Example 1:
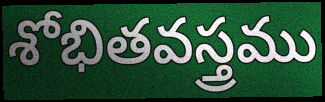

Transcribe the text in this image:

శోభితవస్త్రము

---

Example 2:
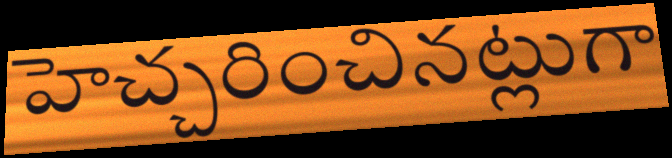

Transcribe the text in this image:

హెచ్చరించినట్లుగా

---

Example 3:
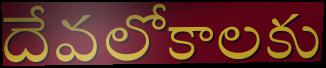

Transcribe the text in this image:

దేవలోకాలకు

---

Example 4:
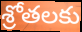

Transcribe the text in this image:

శ్రోతలకు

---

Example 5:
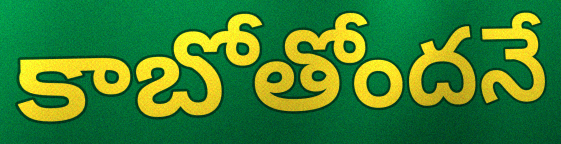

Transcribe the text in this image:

కాబోతోందనే